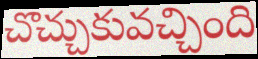
చొచ్చుకువచ్చింది